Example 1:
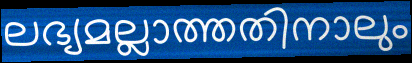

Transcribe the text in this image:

ലഭ്യമല്ലാത്തതിനാലും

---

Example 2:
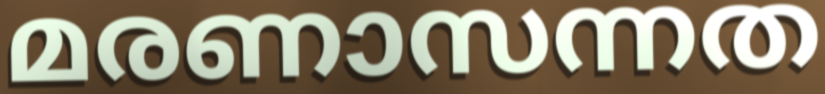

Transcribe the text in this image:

മരണാസന്നത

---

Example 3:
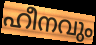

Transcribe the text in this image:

ഹീനവും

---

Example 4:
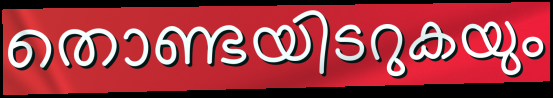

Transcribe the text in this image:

തൊണ്ടയിടറുകയും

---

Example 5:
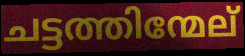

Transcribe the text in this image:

ചട്ടത്തിന്മേല്